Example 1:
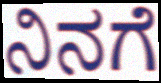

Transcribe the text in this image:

ನಿನಗೆ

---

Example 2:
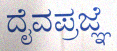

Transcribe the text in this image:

ದೈವಪ್ರಜ್ಞೆ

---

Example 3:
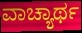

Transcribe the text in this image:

ವಾಚ್ಯಾರ್ಥ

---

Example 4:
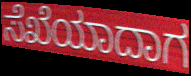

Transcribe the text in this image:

ಸೆಖೆಯಾದಾಗ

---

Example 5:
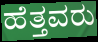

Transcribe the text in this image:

ಹೆತ್ತವರು